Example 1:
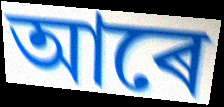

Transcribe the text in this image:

আৰে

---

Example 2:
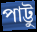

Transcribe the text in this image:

পাট্টু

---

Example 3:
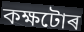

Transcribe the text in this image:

কক্ষটোৰ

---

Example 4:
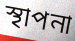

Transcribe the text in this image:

স্থাপনা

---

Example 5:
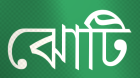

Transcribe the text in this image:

ঝোটি